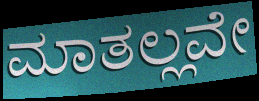
ಮಾತಲ್ಲವೇ